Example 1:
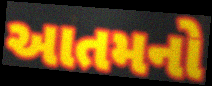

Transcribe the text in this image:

આતમનો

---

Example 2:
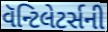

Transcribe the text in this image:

વૅન્ટિલેટર્સની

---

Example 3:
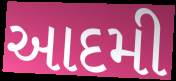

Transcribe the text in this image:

આદમી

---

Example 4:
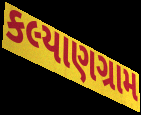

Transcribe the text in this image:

કલ્યાણગ્રામ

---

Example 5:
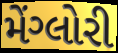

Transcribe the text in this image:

મેંગ્લોરી